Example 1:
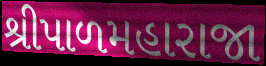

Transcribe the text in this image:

શ્રીપાળમહારાજા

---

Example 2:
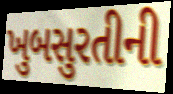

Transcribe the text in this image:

ખુબસુરતીની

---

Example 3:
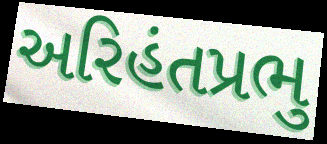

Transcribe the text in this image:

અરિહંતપ્રભુ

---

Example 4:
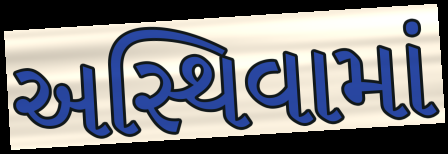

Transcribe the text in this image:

અસ્થિવામાં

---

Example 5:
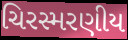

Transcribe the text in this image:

ચિરસ્મરણીય